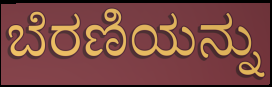
ಬೆರಣಿಯನ್ನು